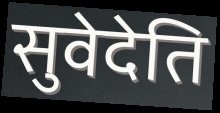
सुवेदेति